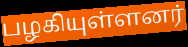
பழகியுள்ளனர்